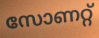
സോണറ്റ്